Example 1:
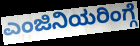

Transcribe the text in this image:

ಎಂಜಿನಿಯರಿಂಗ್ಗೆ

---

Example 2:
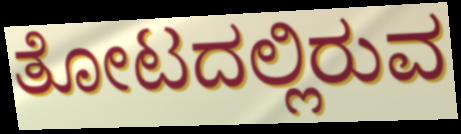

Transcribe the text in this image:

ತೋಟದಲ್ಲಿರುವ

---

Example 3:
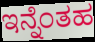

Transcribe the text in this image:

ಇನ್ನೆಂತಹ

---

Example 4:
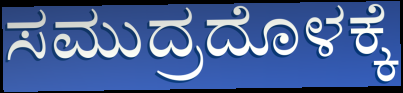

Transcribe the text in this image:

ಸಮುದ್ರದೊಳಕ್ಕೆ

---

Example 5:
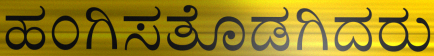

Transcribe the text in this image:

ಹಂಗಿಸತೊಡಗಿದರು